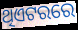
ଥିଏଟରରେ